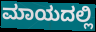
ಮಾಯದಲ್ಲಿ